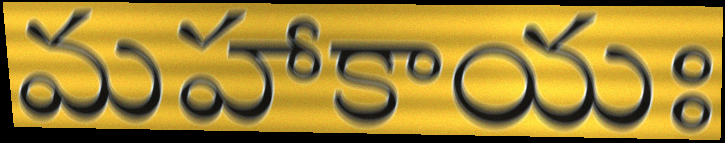
మహాకాయః